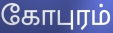
கோபுரம்